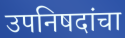
उपनिषदांचा